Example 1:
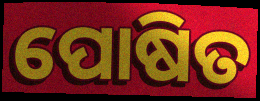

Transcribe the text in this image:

ପୋଷିତ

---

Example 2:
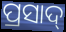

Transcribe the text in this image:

ପ୍ରସାଦ୍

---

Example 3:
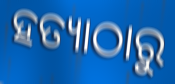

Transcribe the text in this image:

ହତ୍ୟାଠାରୁ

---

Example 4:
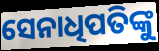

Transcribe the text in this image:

ସେନାଧିପତିଙ୍କୁ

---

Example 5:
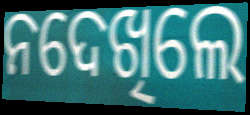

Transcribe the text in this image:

ନଦେଖିଲେ